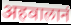
अहवालानं